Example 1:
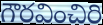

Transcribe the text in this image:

గౌరవించిరి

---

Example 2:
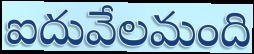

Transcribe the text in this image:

ఐదువేలమంది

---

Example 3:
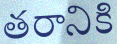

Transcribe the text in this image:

తరానికి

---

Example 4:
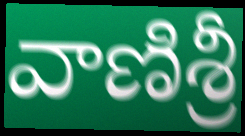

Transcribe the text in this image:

వాణిశ్రీ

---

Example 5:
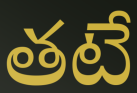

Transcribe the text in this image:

తటే